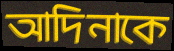
আদিনাকে